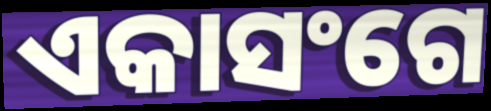
ଏକାସଂଗେ